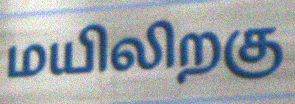
மயிலிறகு